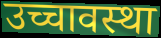
उच्चावस्था